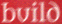
build